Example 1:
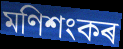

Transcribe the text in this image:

মণিশংকৰ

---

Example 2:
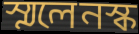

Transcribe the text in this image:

স্মলেনস্ক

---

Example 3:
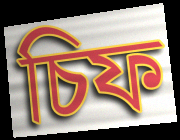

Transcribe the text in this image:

চিফ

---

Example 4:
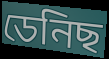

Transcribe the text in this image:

ডেনিছ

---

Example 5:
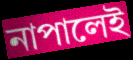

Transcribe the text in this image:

নাপালেই